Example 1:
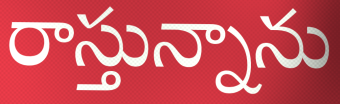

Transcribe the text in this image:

రాస్తున్నాను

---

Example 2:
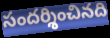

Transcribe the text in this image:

సందర్శించినది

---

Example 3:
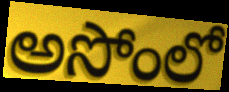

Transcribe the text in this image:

అసోంలో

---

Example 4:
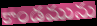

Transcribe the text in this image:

కాండమును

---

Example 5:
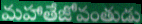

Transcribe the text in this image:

మహాతేజోవంతుడు